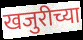
खजुरीच्या